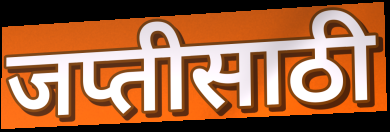
जप्तीसाठी